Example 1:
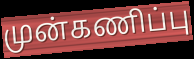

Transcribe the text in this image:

முன்கணிப்பு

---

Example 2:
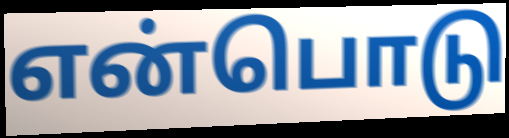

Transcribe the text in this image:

என்பொடு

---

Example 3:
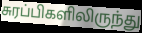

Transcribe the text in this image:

சுரப்பிகளிலிருந்து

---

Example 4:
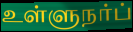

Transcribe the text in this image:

உள்ளுநர்ப்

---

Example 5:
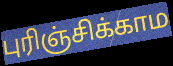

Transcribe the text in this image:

புரிஞ்சிக்காம